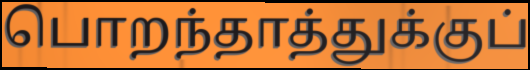
பொறந்தாத்துக்குப்